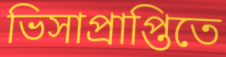
ভিসাপ্রাপ্তিতে